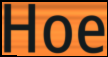
Hoe